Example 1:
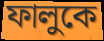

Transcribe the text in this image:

ফালুকে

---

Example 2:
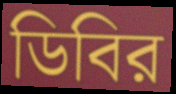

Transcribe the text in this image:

ডিবির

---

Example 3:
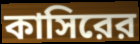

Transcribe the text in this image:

কাসিরের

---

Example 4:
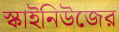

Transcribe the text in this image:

স্কাইনিউজের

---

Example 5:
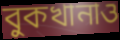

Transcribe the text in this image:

বুকখানাও